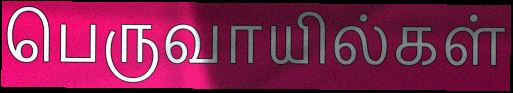
பெருவாயில்கள்